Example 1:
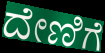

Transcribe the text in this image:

ದೇಣಿಗೆ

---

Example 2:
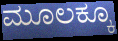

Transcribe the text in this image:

ಮೂಲಕ್ಕೂ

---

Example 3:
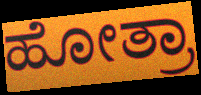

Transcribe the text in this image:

ಹೋತ್ರಾ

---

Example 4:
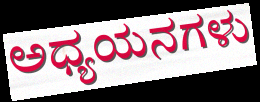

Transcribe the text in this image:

ಅಧ್ಯಯನಗಳು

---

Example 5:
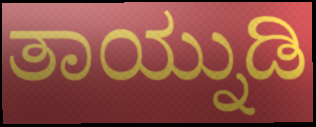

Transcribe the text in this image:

ತಾಯ್ನುಡಿ